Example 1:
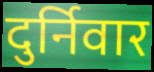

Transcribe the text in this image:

दुर्निवार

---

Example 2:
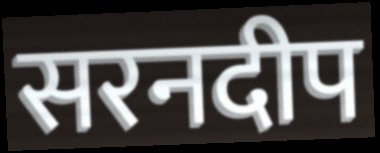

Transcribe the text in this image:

सरनदीप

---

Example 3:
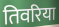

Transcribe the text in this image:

तिवरिया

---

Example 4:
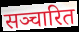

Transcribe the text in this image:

सञ्चारित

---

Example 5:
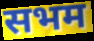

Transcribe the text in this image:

सभम